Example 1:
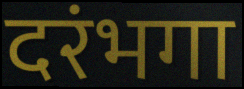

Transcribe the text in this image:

दरंभगा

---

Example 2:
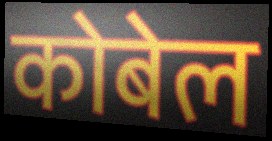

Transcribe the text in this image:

कोबेल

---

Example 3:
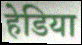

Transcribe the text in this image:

हेडिया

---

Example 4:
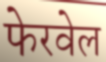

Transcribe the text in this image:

फेरवेल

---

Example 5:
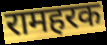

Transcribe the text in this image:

रामहरक